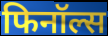
फिनॉल्स